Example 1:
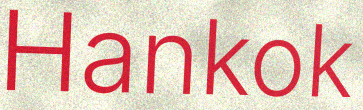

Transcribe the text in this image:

Hankok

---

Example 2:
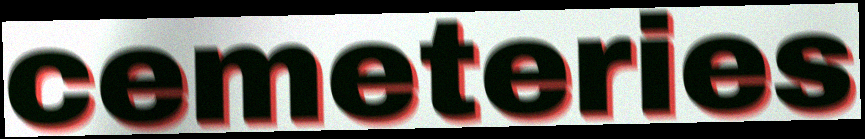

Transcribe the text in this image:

cemeteries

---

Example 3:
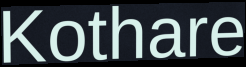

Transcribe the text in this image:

Kothare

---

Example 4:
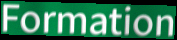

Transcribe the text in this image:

Formation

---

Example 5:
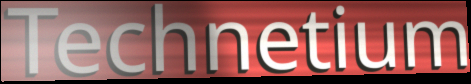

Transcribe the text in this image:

Technetium